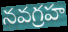
నవగ్రహ